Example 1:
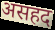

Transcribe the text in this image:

असहद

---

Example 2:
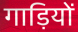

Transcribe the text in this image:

गाड़ियों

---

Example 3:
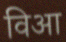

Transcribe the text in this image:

विआ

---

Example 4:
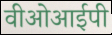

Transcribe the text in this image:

वीओआईपी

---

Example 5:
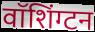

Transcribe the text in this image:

वॉशिंग्टन